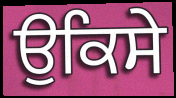
ਉਕਿਸੇ